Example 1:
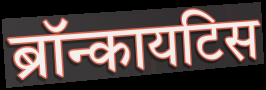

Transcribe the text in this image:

ब्रॉन्कायटिस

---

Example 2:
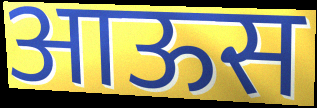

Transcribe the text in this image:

आऊस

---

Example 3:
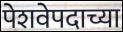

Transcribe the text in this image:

पेशवेपदाच्या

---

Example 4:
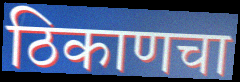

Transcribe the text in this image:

ठिकाणचा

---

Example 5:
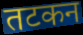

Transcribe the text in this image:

तटकन